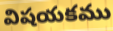
విషయకము